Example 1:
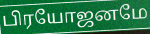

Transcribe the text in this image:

பிரயோஜனமே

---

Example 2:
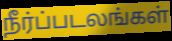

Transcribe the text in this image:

நீர்ப்படலங்கள்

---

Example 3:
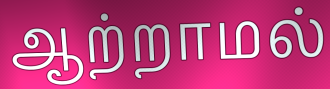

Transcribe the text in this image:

ஆற்றாமல்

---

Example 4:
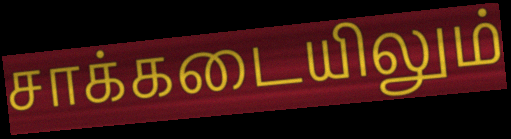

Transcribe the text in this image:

சாக்கடையிலும்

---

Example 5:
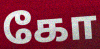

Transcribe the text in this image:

கோ